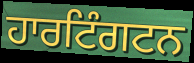
ਹਾਰਟਿੰਗਟਨ